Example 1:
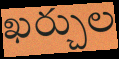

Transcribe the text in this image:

ఖర్చుల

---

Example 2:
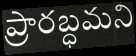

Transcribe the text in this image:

ప్రారబ్ధమని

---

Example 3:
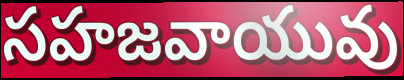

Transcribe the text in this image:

సహజవాయువు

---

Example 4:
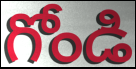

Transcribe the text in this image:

గోండి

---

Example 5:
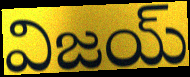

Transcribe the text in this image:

విజయ్